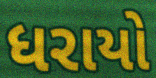
ધરાયો